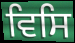
ਵਿਸਿ